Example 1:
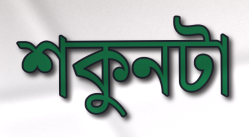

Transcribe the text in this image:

শকুনটা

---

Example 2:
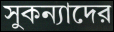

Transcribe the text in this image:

সুকন্যাদের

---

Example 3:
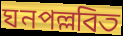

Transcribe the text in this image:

ঘনপল্লবিত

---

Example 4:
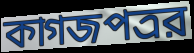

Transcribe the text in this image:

কাগজপত্রর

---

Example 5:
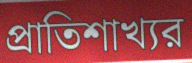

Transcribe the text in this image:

প্রাতিশাখ্যর